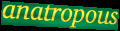
anatropous